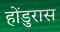
होंडुरास